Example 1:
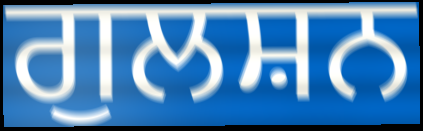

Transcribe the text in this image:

ਗੁਲਸ਼ਨ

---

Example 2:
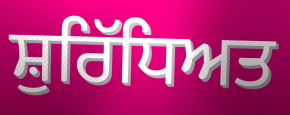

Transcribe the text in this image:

ਸ਼ੁਰਿੱਧਿਅਤ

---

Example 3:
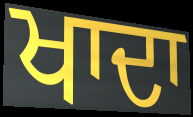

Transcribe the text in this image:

ਖਾਦਾ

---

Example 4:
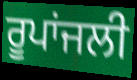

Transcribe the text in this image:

ਰੂਪਾਂਜਲੀ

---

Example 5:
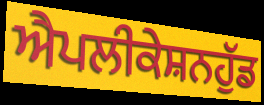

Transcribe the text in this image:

ਐਪਲੀਕੇਸ਼ਨਹੁੱਡ